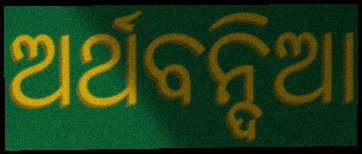
ଅର୍ଥବନ୍ଦିଆ